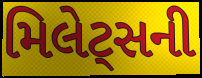
મિલેટ્સની